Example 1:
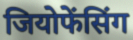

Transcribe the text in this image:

जियोफेंसिंग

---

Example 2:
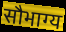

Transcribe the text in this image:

सौभाग्य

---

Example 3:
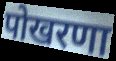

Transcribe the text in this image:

पोखरणा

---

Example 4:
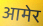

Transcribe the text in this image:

आमेर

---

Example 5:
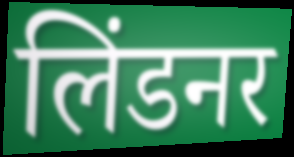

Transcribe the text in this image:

लिंडनर